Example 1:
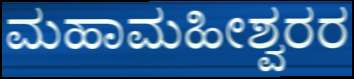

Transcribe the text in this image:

ಮಹಾಮಹೀಶ್ವರರ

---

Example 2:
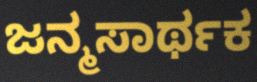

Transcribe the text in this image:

ಜನ್ಮಸಾರ್ಥಕ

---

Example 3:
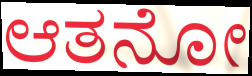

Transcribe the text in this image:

ಆತನೋ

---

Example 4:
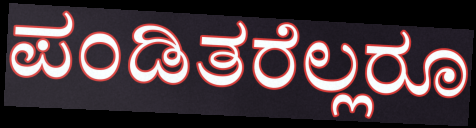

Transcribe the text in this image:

ಪಂಡಿತರೆಲ್ಲರೂ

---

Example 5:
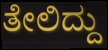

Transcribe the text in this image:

ತೇಲಿದ್ದು